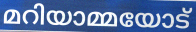
മറിയാമ്മയോട്